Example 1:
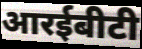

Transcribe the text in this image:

आरईबीटी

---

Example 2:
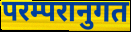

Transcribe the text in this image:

परम्परानुगत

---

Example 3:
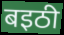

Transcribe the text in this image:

बइठी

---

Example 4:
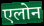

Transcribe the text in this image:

एलोन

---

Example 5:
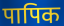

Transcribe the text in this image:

पापिक